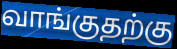
வாங்குதற்கு